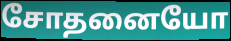
சோதனையோ